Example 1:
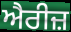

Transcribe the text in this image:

ਐਰੀਜ਼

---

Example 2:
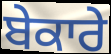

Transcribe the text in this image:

ਬੇਕਾਰੇ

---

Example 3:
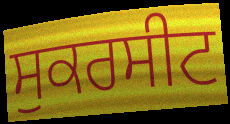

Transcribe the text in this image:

ਸੁਕਰਸੀਟ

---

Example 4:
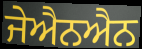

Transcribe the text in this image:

ਜੇਐਨਐਨ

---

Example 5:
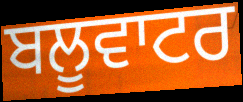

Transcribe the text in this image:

ਬਲੂਵਾਟਰ